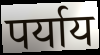
पर्याय